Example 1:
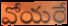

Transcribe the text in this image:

వోయరే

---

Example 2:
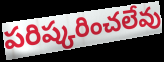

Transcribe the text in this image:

పరిష్కరించలేవు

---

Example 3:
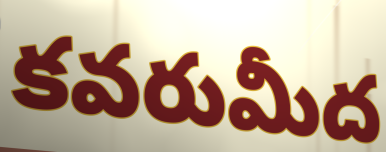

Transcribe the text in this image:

కవరుమీద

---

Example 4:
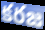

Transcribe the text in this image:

కరజ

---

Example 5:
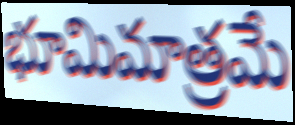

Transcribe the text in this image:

భూమిమాత్రమే